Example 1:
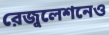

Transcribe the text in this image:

রেজুলেশনেও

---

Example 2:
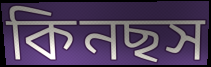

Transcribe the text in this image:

কিনছস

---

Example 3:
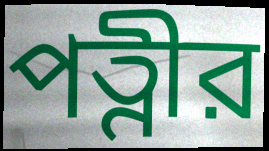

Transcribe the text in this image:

পত্নীর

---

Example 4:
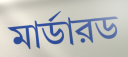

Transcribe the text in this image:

মার্ডারড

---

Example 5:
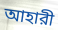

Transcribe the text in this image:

আহারী